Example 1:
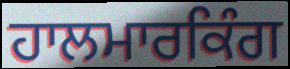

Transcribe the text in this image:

ਹਾਲਮਾਰਕਿੰਗ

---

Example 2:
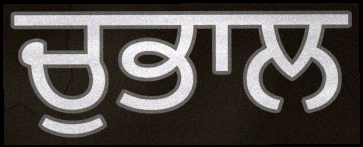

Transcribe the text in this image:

ਚੁਭਾਲ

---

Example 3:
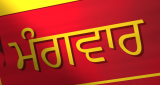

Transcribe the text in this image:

ਮੰਗਵਾਰ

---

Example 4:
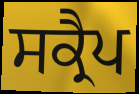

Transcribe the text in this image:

ਸਕ੍ਰੈਪ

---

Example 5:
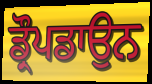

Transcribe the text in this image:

ਡ੍ਰੌਪਡਾਉਨ